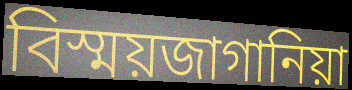
বিস্ময়জাগানিয়া